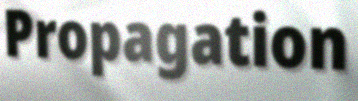
Propagation